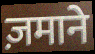
ज़माने